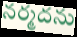
నర్మదను